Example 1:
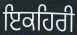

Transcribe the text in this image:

ਇਕਹਿਰੀ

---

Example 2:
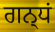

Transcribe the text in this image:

ਗਨ੍ਧਂ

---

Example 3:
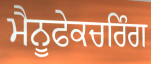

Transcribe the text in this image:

ਮੈਨੂਫੇਕਚਰਿੰਗ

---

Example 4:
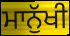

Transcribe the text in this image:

ਮਾਨੁੱਖੀ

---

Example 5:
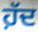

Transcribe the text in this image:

ਹ਼ੱਦ